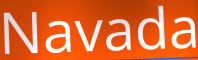
Navada